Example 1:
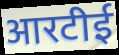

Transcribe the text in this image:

आरटीई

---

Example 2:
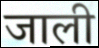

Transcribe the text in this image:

जाली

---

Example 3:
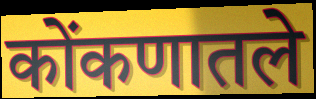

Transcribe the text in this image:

कोंकणातले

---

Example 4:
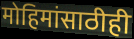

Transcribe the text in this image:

मोहिमांसाठीही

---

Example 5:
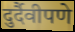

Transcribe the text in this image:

दुर्दैवीपणे